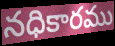
నధికారము